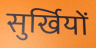
सुर्खियों